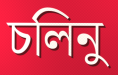
চলিনু